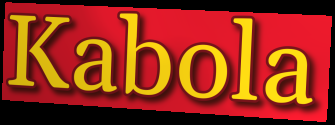
Kabola